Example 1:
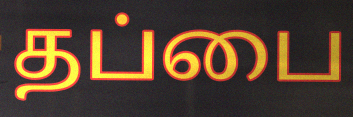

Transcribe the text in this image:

தப்பை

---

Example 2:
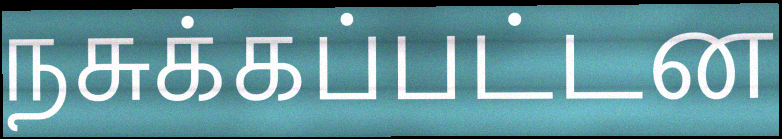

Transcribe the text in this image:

நசுக்கப்பட்டன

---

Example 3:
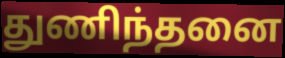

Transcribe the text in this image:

துணிந்தனை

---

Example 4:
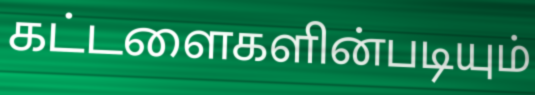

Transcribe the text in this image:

கட்டளைகளின்படியும்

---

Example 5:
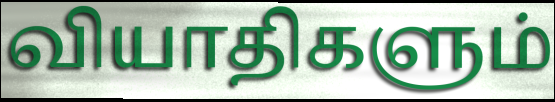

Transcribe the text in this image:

வியாதிகளும்